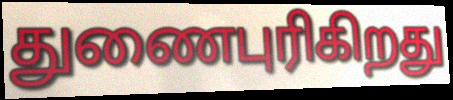
துணைபுரிகிறது